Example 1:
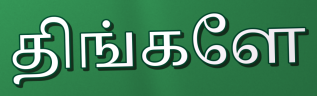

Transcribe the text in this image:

திங்களே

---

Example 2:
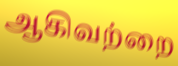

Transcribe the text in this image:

ஆகிவற்றை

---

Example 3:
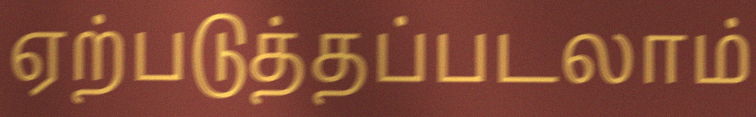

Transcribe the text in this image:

ஏற்படுத்தப்படலாம்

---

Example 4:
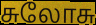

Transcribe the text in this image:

சுலோசு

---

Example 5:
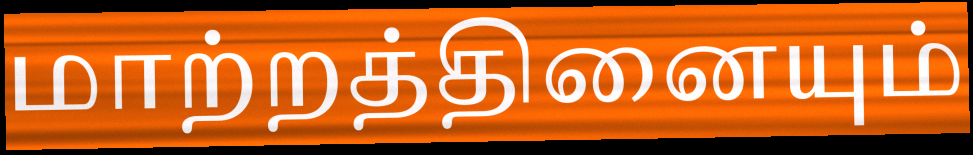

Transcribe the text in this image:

மாற்றத்தினையும்